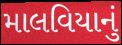
માલવિયાનું